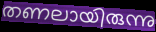
തണലായിരുന്നു